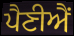
ਪੈਣੀਐਂ